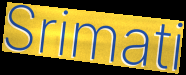
Srimati